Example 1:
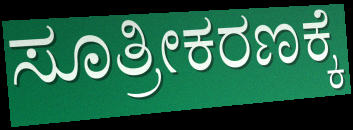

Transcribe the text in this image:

ಸೂತ್ರೀಕರಣಕ್ಕೆ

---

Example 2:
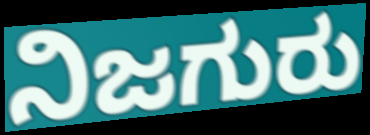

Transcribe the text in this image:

ನಿಜಗುರು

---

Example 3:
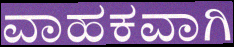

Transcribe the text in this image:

ವಾಹಕವಾಗಿ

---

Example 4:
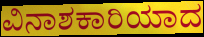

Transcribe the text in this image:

ವಿನಾಶಕಾರಿಯಾದ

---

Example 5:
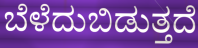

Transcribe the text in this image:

ಬೆಳೆದುಬಿಡುತ್ತದೆ